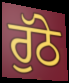
ਰੁੱਠੇ